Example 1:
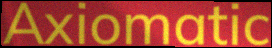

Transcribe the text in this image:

Axiomatic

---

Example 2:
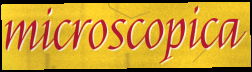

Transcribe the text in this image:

microscopica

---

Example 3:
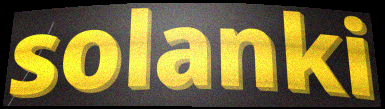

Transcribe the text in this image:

solanki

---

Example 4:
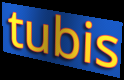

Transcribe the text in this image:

tubis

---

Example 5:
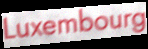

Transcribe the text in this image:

Luxembourg